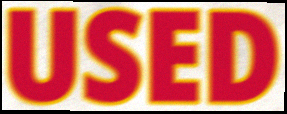
USED